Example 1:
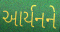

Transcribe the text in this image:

આર્યનને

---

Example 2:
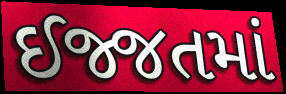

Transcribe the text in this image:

ઈજ્જતમાં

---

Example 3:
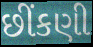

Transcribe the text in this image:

છીંકણી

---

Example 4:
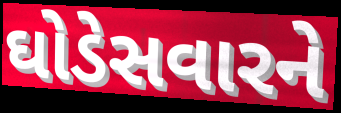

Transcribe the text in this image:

ઘોડેસવારને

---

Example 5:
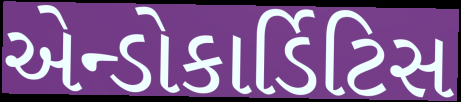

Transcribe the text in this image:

એન્ડોકાર્ડિટિસ